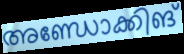
അണ്ഡോക്കിങ്